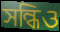
সন্ধিও